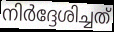
നിർദ്ദേശിച്ചത്